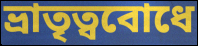
ভ্রাতৃত্ববোধে